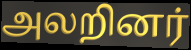
அலறினர்